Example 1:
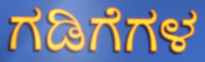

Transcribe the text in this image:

ಗಡಿಗೆಗಳ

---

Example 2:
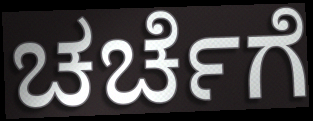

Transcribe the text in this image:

ಚರ್ಚೆಗೆ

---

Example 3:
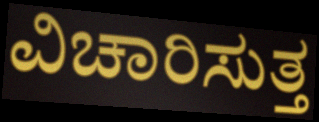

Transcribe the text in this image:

ವಿಚಾರಿಸುತ್ತ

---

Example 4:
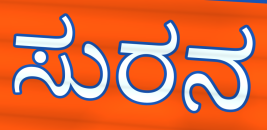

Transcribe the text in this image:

ಸುರನ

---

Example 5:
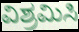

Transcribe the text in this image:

ವಿಶ್ರಮಿಸಿ